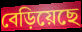
বেড়িয়েছে